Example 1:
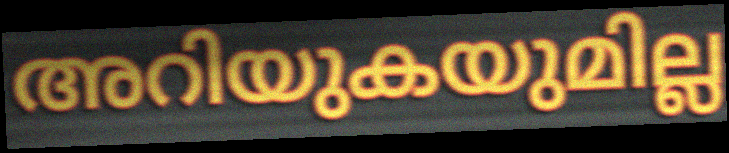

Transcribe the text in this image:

അറിയുകയുമില്ല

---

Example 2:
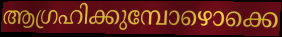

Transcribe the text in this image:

ആഗ്രഹിക്കുമ്പോഴൊക്കെ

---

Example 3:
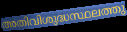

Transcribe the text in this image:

അതിവിശുദ്ധസ്ഥലത്തു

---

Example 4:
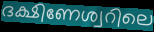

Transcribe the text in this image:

ദക്ഷിണേശ്വറിലെ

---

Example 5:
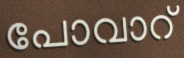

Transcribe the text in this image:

പോവാറ്